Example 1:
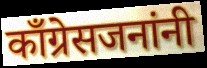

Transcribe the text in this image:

काँग्रेसजनांनी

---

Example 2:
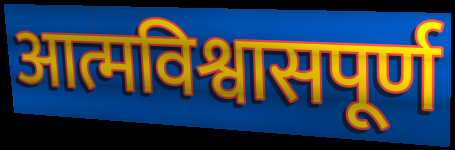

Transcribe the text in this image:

आत्मविश्वासपूर्ण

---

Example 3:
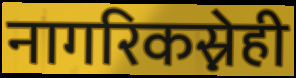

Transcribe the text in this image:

नागरिकस्नेही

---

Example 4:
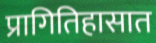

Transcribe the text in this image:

प्रागितिहासात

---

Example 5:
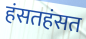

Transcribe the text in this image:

हंसतहंसत